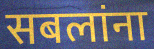
सबलांना